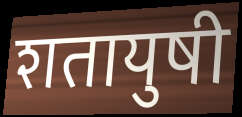
शतायुषी